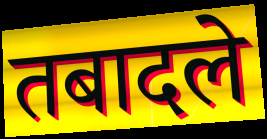
तबादले